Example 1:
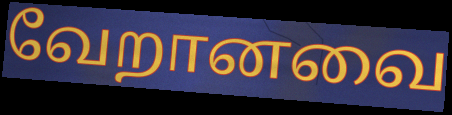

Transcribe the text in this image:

வேறானவை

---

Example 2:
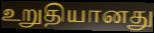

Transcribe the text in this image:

உறுதியானது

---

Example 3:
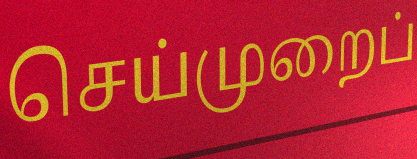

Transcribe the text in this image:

செய்முறைப்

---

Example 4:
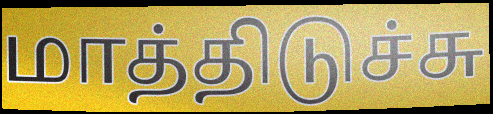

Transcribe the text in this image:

மாத்திடுச்சு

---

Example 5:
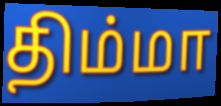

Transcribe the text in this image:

திம்மா